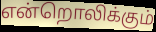
என்றொலிக்கும்